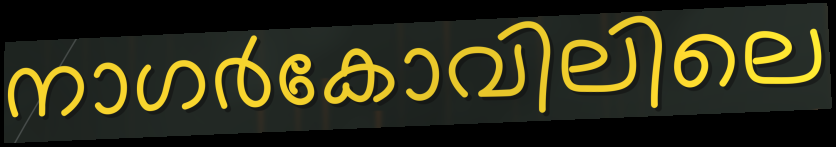
നാഗർകോവിലിലെ